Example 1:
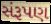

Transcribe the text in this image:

સંરૂપણ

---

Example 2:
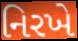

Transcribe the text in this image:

નિરખે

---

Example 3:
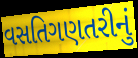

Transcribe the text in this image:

વસતિગણતરીનું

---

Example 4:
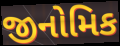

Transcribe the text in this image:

જીનોમિક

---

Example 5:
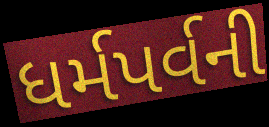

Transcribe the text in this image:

ધર્મપર્વની